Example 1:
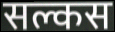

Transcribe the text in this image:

सल्कस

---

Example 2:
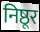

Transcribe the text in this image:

निष्ठूर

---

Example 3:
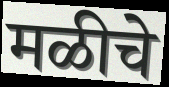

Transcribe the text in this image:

मळीचे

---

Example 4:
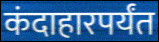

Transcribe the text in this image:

कंदाहारपर्यंत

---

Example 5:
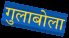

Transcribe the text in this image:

गुलाबोला